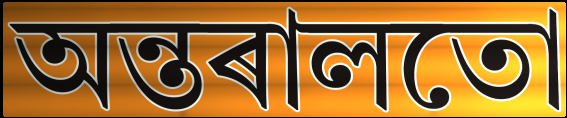
অন্তৰালতো